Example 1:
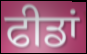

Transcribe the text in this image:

ਫੀਡਾਂ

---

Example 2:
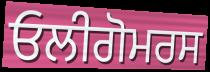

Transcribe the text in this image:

ਓਲੀਗੋਮਰਸ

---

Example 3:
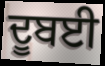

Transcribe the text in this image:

ਦੂਬਈ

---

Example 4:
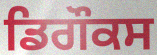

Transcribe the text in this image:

ਡਿਗੌਕਸ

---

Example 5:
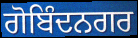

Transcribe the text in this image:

ਗੋਬਿੰਦਨਗਰ